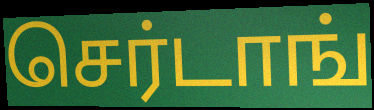
செர்டாங்